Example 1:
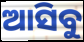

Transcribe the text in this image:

ଆସିବୁ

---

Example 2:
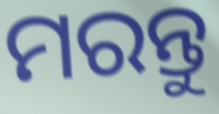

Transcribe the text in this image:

ମରନ୍ତୁ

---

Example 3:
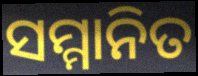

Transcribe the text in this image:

ସମ୍ମାନିତ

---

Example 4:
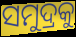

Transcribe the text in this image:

ସମୁଦ୍ରକୁ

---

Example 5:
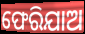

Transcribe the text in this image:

ଫେରିଯାଅ